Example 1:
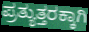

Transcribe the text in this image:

ಪ್ರತ್ಯುತ್ತರಕ್ಕಾಗಿ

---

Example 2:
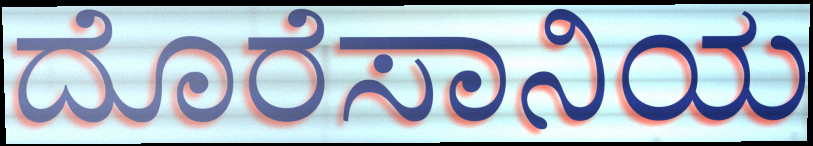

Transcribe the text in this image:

ದೊರೆಸಾನಿಯ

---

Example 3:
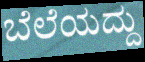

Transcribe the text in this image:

ಬೆಲೆಯದ್ದು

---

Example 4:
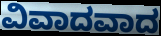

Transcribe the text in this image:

ವಿವಾದವಾದ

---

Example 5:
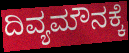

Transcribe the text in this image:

ದಿವ್ಯಮೌನಕ್ಕೆ